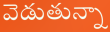
వెడుతున్నా